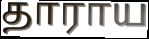
தாராய